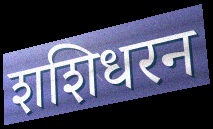
शशिधरन